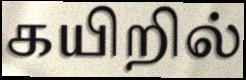
கயிறில்